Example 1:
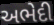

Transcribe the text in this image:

અભેદી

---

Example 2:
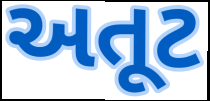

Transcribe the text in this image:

અતૂટ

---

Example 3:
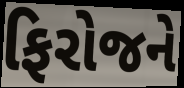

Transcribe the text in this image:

ફિરોજને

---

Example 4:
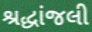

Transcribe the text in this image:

શ્રદ્ધાંજલી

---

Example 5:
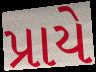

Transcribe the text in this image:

પ્રાયે